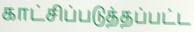
காட்சிப்படுத்தப்பட்ட